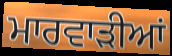
ਮਾਰਵਾੜੀਆਂ